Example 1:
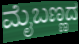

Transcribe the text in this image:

ಮೈಬಣ್ಣದ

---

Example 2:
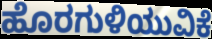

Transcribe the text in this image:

ಹೊರಗುಳಿಯುವಿಕೆ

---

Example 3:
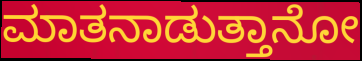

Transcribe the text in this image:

ಮಾತನಾಡುತ್ತಾನೋ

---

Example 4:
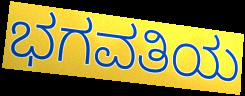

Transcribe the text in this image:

ಭಗವತಿಯ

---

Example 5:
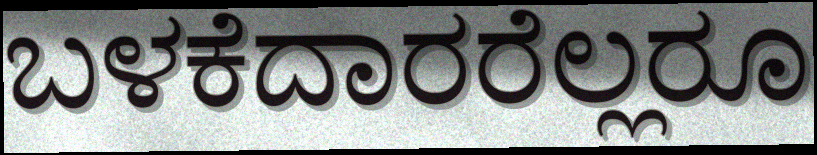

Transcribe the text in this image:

ಬಳಕೆದಾರರೆಲ್ಲರೂ